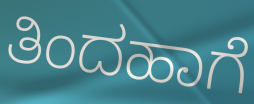
ತಿಂದಹಾಗೆ